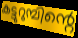
കട്ടുറുമ്പിന്റെ